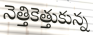
నెత్తికెత్తుకున్న